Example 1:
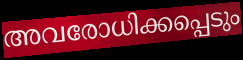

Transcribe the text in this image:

അവരോധിക്കപ്പെടും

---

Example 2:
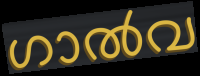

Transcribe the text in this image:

ഗാൽവ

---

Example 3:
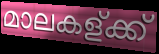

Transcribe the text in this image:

മാലകള്ക്ക്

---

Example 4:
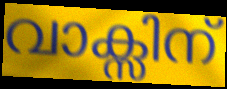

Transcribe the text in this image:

വാക്സിന്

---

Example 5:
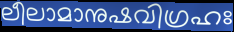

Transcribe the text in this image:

ലീലാമാനുഷവിഗ്രഹഃ